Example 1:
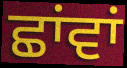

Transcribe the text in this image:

ਛਾਂਵਾਂ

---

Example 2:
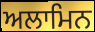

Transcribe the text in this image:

ਅਲਾਮਿਨ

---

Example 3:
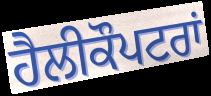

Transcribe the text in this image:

ਹੈਲੀਕੌਪਟਰਾਂ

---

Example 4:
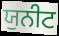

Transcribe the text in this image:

ਯੁਨੀਟ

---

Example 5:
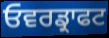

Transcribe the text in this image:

ਓਵਰਡ੍ਰਾਫਟ